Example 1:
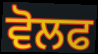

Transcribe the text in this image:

ਵੋਲਫ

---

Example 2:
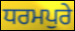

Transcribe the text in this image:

ਧਰਮਪੁਰੇ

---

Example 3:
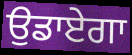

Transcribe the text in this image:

ਉਡਾਏਗਾ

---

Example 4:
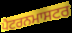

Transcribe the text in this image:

ਪੈਟਰਨਮਾਸਟਰ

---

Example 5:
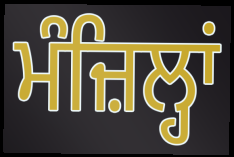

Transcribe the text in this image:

ਮੰਜ਼ਿਲ੍ਹਾਂ